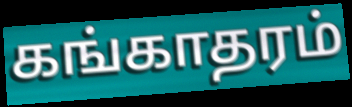
கங்காதரம்